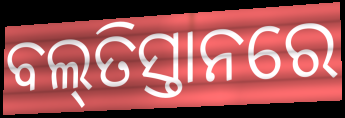
ବଲ୍‌ତିସ୍ତାନରେ